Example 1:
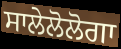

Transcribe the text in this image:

ਸਾਲੇਲੋਲੋਗਾ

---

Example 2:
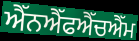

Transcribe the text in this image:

ਐੱਨਐੱਫਐੱਚਐੱਮ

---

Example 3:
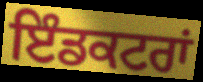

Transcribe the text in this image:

ਇੰਡਕਟਰਾਂ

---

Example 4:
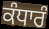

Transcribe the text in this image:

ਕੰਧਾਰੰ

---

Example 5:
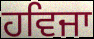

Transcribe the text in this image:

ਹਵਿਜਾ